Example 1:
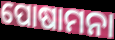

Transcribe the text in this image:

ପୋଷାମନା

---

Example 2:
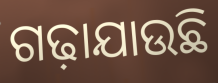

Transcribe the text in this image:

ଗଢ଼ାଯାଉଛି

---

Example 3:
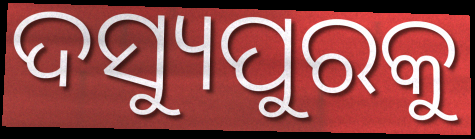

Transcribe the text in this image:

ଦସ୍ୟୁପୁରକୁ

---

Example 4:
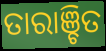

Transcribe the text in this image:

ତାରାଞ୍ଚିତ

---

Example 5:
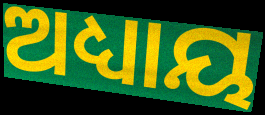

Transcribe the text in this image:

ଅଧ୍ୟାୟ